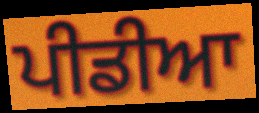
ਪੀਡੀਆ